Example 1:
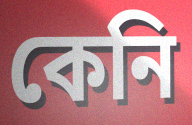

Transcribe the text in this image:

কেনি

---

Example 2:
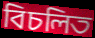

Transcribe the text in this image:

বিচলিত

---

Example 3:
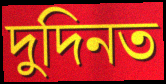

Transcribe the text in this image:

দুদিনত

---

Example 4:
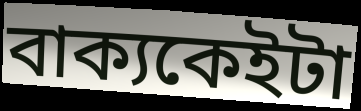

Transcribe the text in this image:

বাক্যকেইটা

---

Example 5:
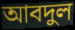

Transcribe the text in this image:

আবদুল